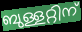
ബുള്ളറ്റിന്